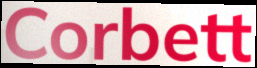
Corbett